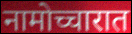
नामोच्चारात